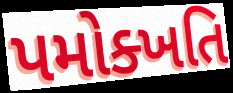
પમોક્ખતિ